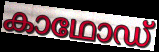
കാഥോഡ്